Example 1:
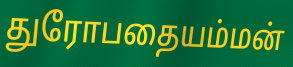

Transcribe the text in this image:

துரோபதையம்மன்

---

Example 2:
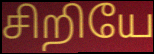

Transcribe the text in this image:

சிறியே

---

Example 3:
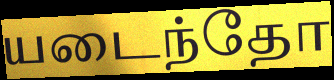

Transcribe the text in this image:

யடைந்தோ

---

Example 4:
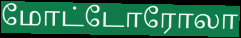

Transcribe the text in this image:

மோட்டோரோலா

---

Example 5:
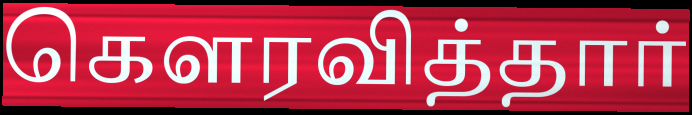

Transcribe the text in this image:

கௌரவித்தார்